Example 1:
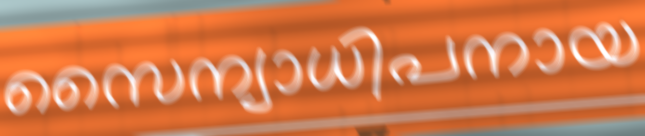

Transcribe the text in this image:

സൈന്യാധിപനായ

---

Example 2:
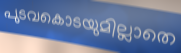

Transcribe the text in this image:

പുടവകൊടയുമില്ലാതെ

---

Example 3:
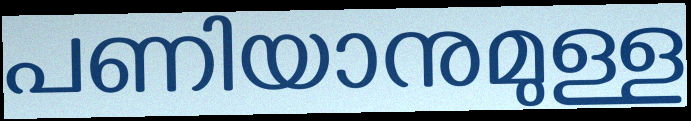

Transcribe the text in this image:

പണിയാനുമുള്ള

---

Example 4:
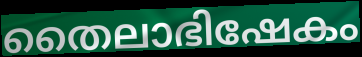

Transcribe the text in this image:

തൈലാഭിഷേകം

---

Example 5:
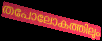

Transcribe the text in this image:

തപോലോകത്തിലും